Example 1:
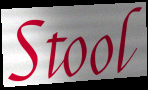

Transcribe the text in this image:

Stool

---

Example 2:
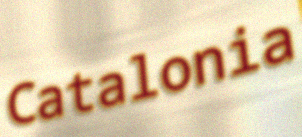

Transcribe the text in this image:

Catalonia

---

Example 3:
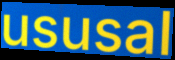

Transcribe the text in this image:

ususal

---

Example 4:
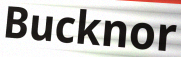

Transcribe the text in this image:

Bucknor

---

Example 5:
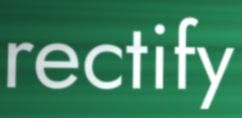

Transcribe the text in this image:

rectify